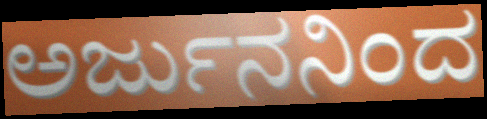
ಅರ್ಜುನನಿಂದ